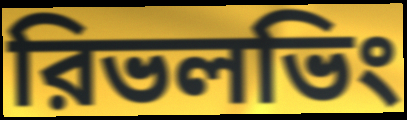
রিভলভিং